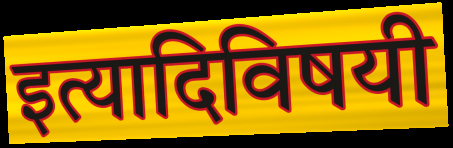
इत्यादिविषयी